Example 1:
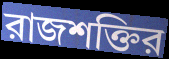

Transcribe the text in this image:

রাজশক্তির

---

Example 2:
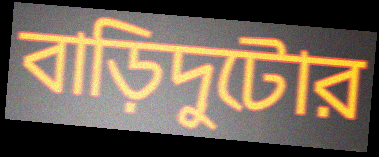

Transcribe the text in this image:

বাড়িদুটোর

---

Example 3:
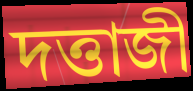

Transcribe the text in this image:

দত্তাজী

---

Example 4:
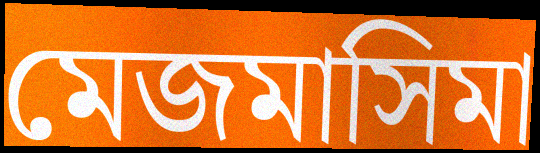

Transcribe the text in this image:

মেজমাসিমা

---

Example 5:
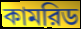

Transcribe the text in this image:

কামরিড